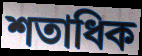
শতাধিক